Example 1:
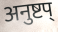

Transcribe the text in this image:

अनुष्टप्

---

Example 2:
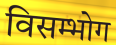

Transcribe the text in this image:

विसम्भोग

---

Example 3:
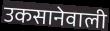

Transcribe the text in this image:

उकसानेवाली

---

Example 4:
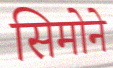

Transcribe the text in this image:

सिमोने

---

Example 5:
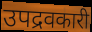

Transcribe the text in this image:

उपद्रवकारी